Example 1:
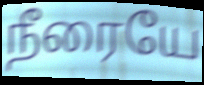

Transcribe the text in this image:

நீரையே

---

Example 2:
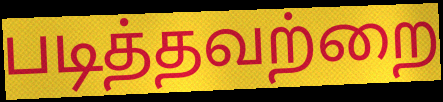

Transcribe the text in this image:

படித்தவற்றை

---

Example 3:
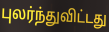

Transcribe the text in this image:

புலர்ந்துவிட்டது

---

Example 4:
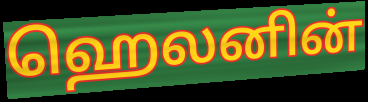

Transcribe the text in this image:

ஹெலனின்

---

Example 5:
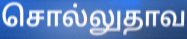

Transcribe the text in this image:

சொல்லுதாவ